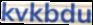
kvkbdu